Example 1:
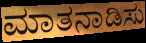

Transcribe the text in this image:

ಮಾತನಾಡಿಸು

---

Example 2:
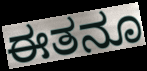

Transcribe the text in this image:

ಈತನೂ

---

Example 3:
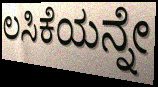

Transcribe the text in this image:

ಲಸಿಕೆಯನ್ನೇ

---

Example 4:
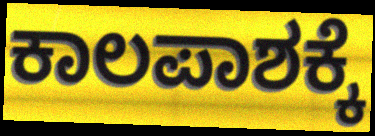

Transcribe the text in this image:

ಕಾಲಪಾಶಕ್ಕೆ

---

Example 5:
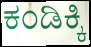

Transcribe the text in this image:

ಕಂಡಿಕ್ಕಿ